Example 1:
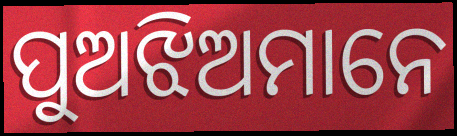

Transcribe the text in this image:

ପୁଅଝିଅମାନେ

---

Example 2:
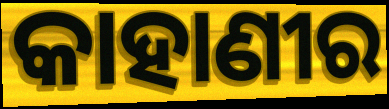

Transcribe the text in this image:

କାହାଣୀର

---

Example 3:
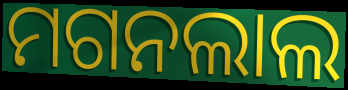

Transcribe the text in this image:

ମଗନଲାଲ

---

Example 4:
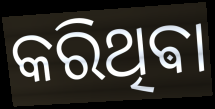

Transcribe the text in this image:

କରିଥିଵା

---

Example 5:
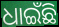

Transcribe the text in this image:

ଧାଇଁଛି